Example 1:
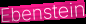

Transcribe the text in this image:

Ebenstein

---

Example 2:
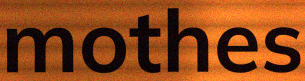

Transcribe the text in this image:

mothes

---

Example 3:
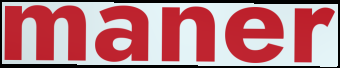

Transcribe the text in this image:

maner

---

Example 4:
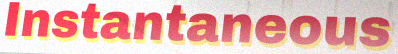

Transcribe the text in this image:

Instantaneous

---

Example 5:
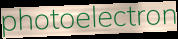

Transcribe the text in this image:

photoelectron